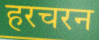
हरचरन